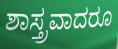
ಶಾಸ್ತ್ರವಾದರೂ